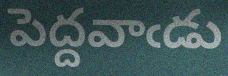
పెద్దవాఁడు